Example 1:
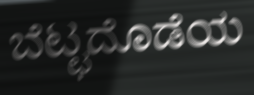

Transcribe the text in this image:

ಬೆಟ್ಟದೊಡೆಯ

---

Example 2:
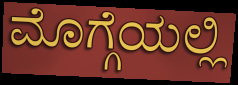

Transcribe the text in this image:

ಮೊಗ್ಗೆಯಲ್ಲಿ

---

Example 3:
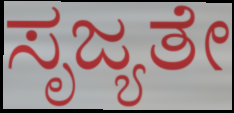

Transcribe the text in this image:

ಸೃಜ್ಯತೇ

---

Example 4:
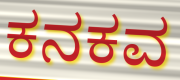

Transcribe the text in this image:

ಕನಕವ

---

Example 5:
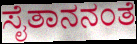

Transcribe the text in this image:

ಸೈತಾನನಂತೆ